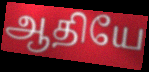
ஆதியே